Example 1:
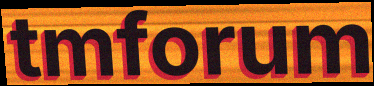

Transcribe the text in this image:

tmforum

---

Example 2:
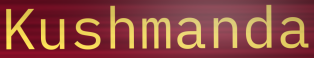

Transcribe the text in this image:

Kushmanda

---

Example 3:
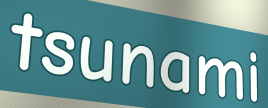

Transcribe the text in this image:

tsunami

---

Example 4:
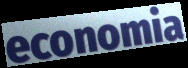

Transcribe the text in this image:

economia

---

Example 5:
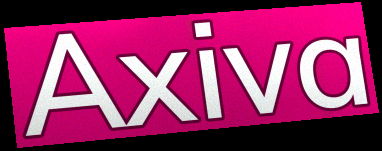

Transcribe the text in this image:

Axiva